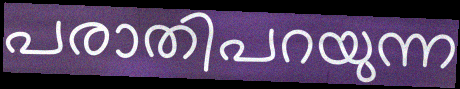
പരാതിപറയുന്ന